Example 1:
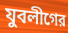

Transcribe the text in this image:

যুবলীগের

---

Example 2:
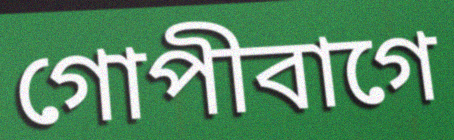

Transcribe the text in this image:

গোপীবাগে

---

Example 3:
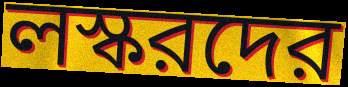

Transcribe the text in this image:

লস্করদের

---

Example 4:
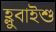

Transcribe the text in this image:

হ্লুবাইশু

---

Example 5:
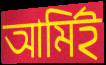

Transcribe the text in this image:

আর্মিই